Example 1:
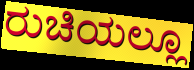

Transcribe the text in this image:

ರುಚಿಯಲ್ಲೂ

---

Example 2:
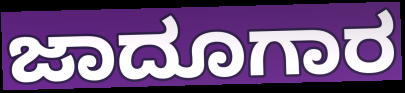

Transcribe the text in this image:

ಜಾದೂಗಾರ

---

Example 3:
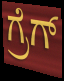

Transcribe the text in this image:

ಗ್ರೆಗ್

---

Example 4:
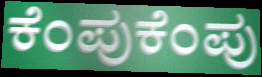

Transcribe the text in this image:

ಕೆಂಪುಕೆಂಪು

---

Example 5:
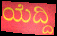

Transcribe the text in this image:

ಯೆದ್ದಿ